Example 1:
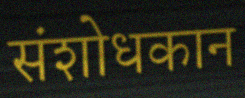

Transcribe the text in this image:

संशोधकान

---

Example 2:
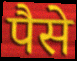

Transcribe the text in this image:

पैसे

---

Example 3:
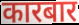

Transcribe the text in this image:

कारबार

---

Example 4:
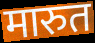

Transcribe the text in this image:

मारुत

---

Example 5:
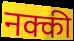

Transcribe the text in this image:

नक्की